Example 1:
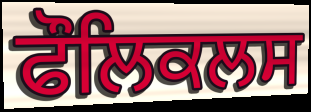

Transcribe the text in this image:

ਫੌਲਿਕਲਸ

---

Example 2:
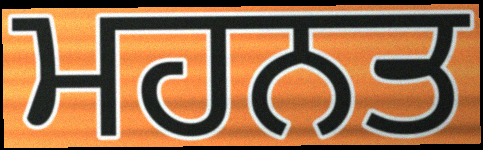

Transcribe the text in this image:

ਮਹਨਤ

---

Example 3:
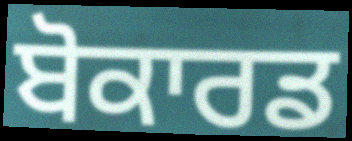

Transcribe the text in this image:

ਬੋਕਾਰਡ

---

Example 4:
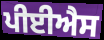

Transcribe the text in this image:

ਪੀਈਐਸ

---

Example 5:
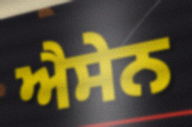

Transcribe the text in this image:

ਐਸੇਨ